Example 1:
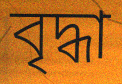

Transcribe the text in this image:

বৃদ্ধা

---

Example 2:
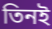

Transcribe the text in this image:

তিনই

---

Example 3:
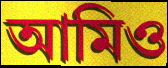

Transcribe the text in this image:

আমিও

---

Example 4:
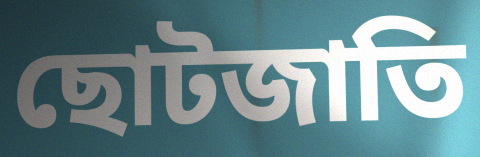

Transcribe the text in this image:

ছোটজাতি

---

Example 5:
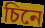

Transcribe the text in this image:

চিনে